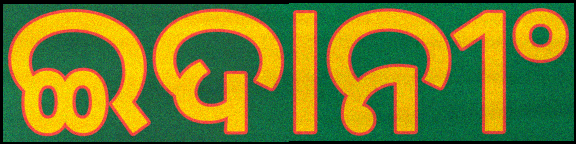
ଇଦାନୀଂ